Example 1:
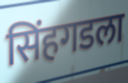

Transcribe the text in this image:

सिंहगडला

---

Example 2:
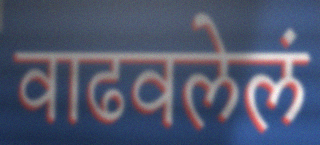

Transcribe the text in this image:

वाढवलेलं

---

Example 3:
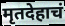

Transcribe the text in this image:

मृतदेहाचं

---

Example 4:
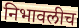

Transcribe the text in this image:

निभावलीच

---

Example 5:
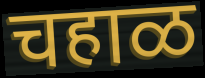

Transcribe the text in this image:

चहाळ